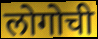
लोगोची